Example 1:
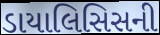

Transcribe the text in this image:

ડાયાલિસિસની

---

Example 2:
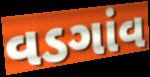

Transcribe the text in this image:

વડગાંવ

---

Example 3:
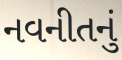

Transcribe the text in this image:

નવનીતનું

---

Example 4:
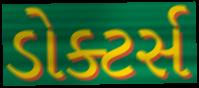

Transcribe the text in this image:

ડોક્ટર્સ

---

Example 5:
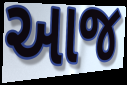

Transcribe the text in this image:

આજ